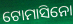
ଟୋମାସିନୋ